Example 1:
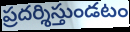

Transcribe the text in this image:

ప్రదర్శిస్తుండటం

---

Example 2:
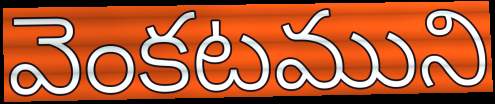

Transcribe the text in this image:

వెంకటముని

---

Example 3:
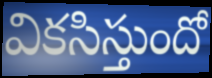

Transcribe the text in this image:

వికసిస్తుందో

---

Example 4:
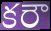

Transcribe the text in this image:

కరౌ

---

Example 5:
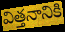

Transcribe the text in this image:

విత్తనానికి